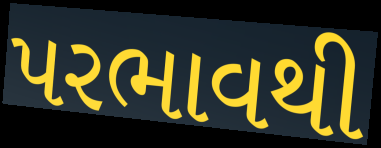
પરભાવથી